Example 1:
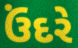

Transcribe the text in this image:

ઉંદરે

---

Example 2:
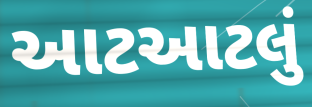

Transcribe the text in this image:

આટઆટલું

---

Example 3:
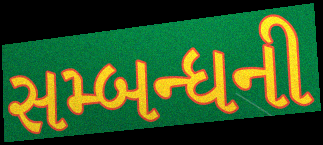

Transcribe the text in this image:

સમ્બન્ધની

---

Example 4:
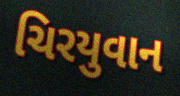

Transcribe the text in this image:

ચિરયુવાન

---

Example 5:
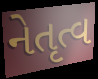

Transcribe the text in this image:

નેતૃત્વ